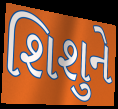
શિશુને